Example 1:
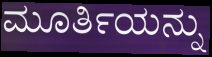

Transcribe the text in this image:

ಮೂರ್ತಿಯನ್ನು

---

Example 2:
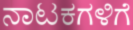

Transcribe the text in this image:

ನಾಟಕಗಳಿಗೆ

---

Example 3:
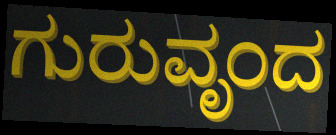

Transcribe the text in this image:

ಗುರುವೃಂದ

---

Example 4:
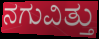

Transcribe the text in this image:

ನಗುವಿತ್ತು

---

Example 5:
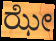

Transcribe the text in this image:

ಝೇ